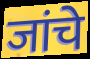
जांचे